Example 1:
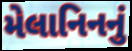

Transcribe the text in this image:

મેલાનિનનું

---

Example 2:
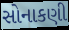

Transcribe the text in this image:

સોનાકણી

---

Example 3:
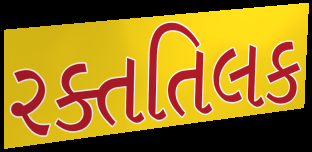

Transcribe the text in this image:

રક્તતિલક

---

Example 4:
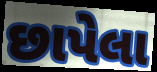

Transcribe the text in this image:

છાપેલા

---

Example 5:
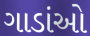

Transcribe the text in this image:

ગાડાંઓ